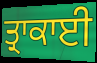
ਤ੍ਰਾਕਾਈ